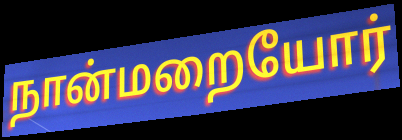
நான்மறையோர்